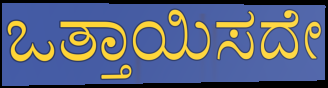
ಒತ್ತಾಯಿಸದೇ